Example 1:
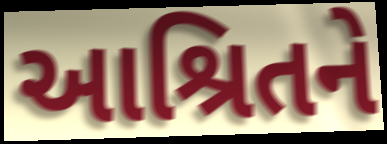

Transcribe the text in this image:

આશ્રિતને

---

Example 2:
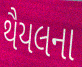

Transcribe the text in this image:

થૈયલના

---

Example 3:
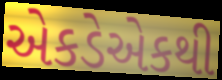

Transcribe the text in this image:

એકડેએકથી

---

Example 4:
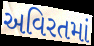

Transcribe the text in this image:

અવિરતમાં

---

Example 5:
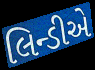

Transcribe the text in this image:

લિન્ડીએ